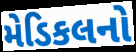
મેડિકલનો